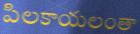
పిలకాయలంతా